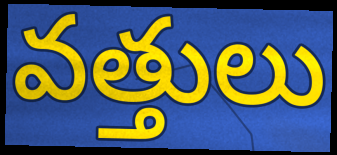
వత్తులు